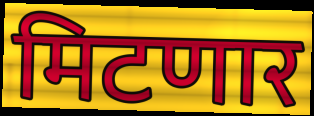
मिटणार